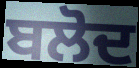
ਬਲੋਦ